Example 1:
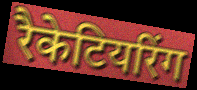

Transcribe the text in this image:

रैकेटियरिंग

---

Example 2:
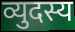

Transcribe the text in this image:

व्युदस्य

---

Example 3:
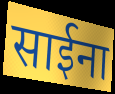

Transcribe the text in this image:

साईना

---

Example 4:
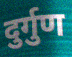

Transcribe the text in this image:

दुर्गुण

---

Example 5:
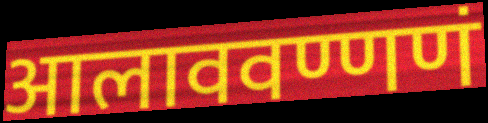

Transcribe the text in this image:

आलाववण्णणं